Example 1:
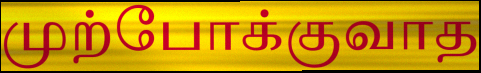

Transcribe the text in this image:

முற்போக்குவாத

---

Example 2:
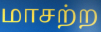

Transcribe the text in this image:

மாசற்ற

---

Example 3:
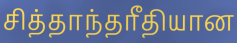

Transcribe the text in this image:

சித்தாந்தரீதியான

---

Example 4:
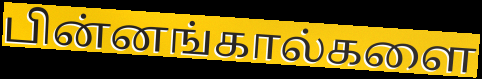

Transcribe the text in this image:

பின்னங்கால்களை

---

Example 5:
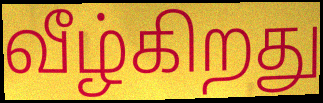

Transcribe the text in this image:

வீழ்கிறது